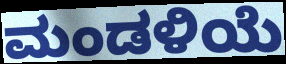
ಮಂಡಳಿಯೆ